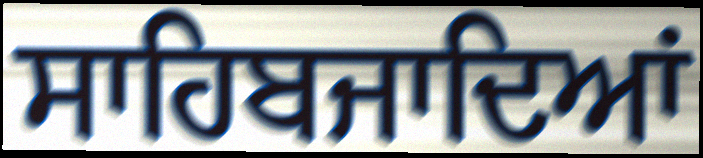
ਸਾਹਿਬਜਾਦਿਆਂ